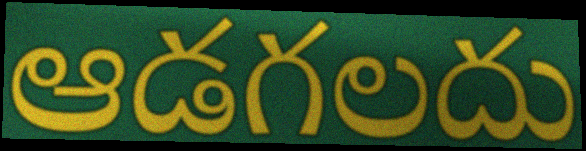
ఆడగలదు